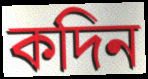
কদিন